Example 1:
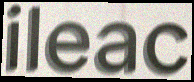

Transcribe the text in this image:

ileac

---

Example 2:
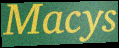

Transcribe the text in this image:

Macys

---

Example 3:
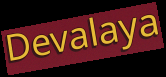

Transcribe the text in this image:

Devalaya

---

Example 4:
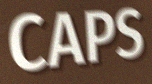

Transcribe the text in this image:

CAPS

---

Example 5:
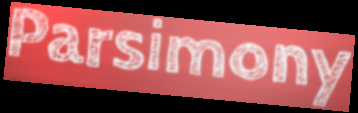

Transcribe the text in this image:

Parsimony